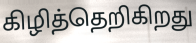
கிழித்தெறிகிறது